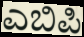
ಎಬಿಪಿ